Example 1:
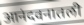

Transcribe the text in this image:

आनंदवनातली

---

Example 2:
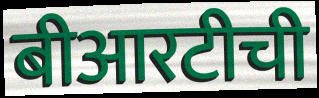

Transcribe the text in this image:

बीआरटीची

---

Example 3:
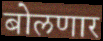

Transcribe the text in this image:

बोलणार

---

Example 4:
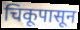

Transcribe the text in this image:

चिकूपासून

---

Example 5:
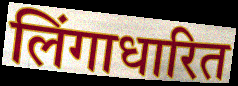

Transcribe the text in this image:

लिंगाधारित